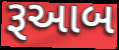
રૂઆબ